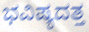
ಭವಿಷ್ಯದತ್ತ